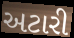
અટારી